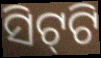
ସିଟ୍‌ଟି